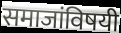
समाजांविषयी